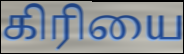
கிரியை